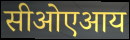
सीओएआय